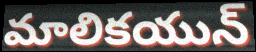
మాలికయున్